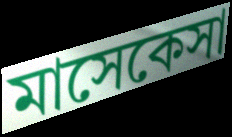
মাসেকেসা